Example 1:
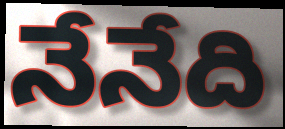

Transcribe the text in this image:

నేనేది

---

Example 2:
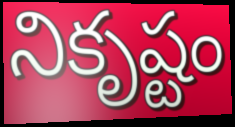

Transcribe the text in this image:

నికృష్టం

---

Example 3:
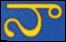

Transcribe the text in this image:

నా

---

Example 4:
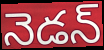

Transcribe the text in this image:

నెడన్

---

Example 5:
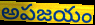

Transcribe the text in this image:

అపజయం